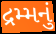
દ્રમ્મનું